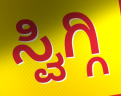
ಸ್ವಿಗ್ಗಿ